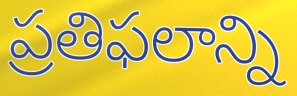
ప్రతిఫలాన్ని